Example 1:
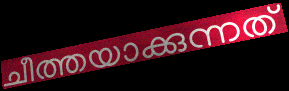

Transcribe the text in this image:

ചീത്തയാക്കുന്നത്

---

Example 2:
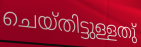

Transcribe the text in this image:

ചെയ്തിട്ടുള്ളതു്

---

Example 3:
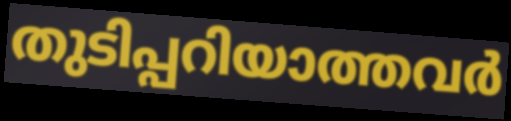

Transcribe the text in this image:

തുടിപ്പറിയാത്തവർ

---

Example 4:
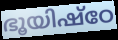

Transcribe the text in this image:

ഭൂയിഷ്ഠേ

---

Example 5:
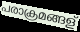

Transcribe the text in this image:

പരാക്രമങ്ങള്